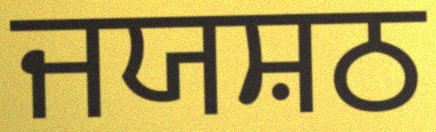
ਜਯਸ਼ਠ